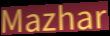
Mazhar